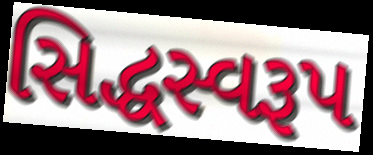
સિદ્ધસ્વરૂપ